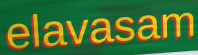
elavasam